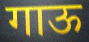
गाऊ